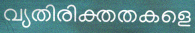
വ്യതിരിക്തതകളെ